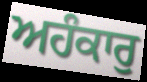
ਅਹੰਕਾਰੁ